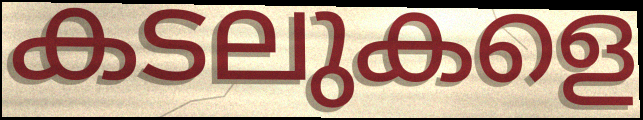
കടലുകളെ